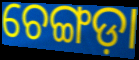
ଚେଙ୍ଗଡ଼ା